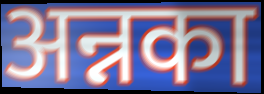
अन्नका